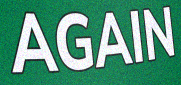
AGAIN